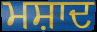
ਮਸ਼ਾਦ